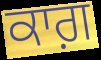
ਕਾਗ਼